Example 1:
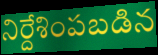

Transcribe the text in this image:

నిర్దేశింపబడిన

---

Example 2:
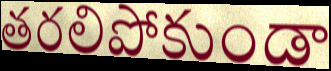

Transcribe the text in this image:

తరలిపోకుండా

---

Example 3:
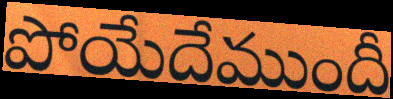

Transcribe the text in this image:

పోయేదేముందీ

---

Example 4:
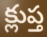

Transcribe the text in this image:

క్లుప్త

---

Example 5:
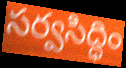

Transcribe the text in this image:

సర్వసిద్ధిం